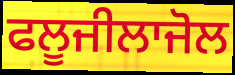
ਫਲੂਜੀਲਾਜੋਲ